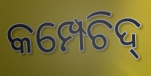
କମ୍ପେଚିଦ୍